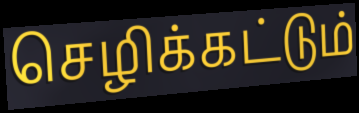
செழிக்கட்டும்